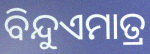
ବିନ୍ଦୁଏମାତ୍ର